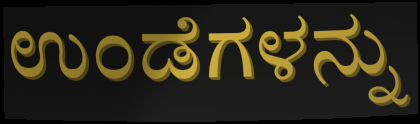
ಉಂಡೆಗಳನ್ನು